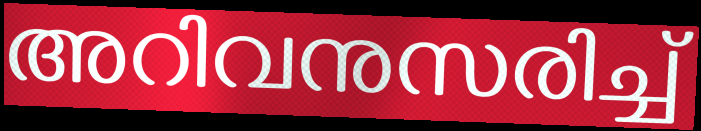
അറിവനുസരിച്ച്